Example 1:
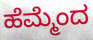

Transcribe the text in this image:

ಹೆಮ್ಮೆಂದ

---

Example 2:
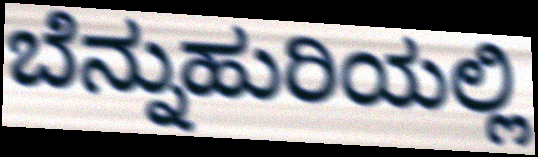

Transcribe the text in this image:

ಬೆನ್ನುಹುರಿಯಲ್ಲಿ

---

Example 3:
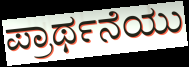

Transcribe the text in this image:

ಪ್ರಾರ್ಥನೆಯು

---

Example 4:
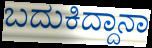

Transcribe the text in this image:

ಬದುಕಿದ್ದಾನಾ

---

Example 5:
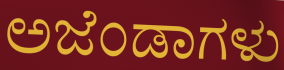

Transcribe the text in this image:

ಅಜೆಂಡಾಗಳು